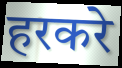
हरकरे